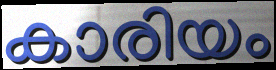
കാരിയം